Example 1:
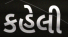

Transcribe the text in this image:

કહેલી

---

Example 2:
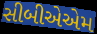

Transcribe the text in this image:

સીબીએએમ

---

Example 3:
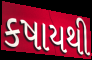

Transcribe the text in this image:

કષાયથી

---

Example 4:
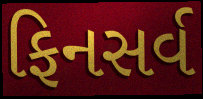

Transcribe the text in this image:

ફિનસર્વ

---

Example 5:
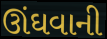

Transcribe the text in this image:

ઊંઘવાની